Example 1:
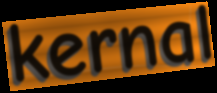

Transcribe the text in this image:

kernal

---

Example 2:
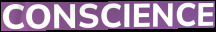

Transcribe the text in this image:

CONSCIENCE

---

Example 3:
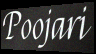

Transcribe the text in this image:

Poojari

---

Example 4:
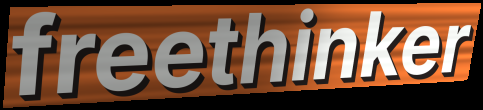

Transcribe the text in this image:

freethinker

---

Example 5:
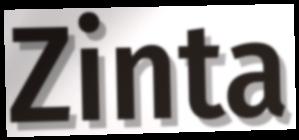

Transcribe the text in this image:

Zinta